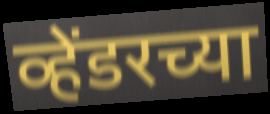
व्हेंडरच्या